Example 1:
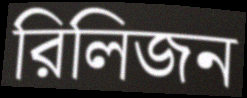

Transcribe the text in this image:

রিলিজন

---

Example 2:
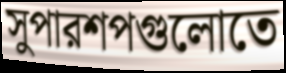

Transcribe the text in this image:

সুপারশপগুলোতে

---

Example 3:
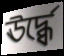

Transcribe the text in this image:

ঊর্দ্ধ্বে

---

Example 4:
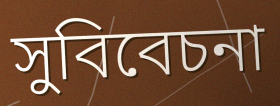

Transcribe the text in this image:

সুবিবেচনা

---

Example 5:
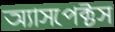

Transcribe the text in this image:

অ্যাসপেক্টস